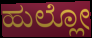
ಹುಲ್ಲೋ